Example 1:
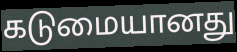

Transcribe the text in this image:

கடுமையானது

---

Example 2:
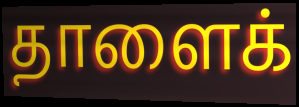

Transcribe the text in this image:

தாளைக்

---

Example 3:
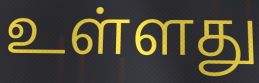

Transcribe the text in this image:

உள்ளது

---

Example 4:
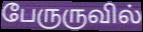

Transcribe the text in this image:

பேருருவில்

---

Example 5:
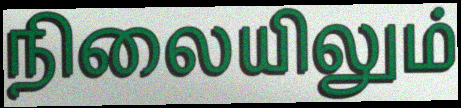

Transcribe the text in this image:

நிலையிலும்